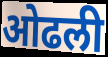
ओढली